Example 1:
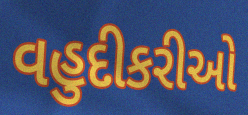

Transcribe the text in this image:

વહુદીકરીઓ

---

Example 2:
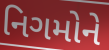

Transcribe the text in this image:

નિગમોને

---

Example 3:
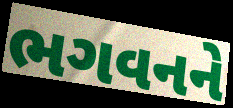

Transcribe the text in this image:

ભગવનને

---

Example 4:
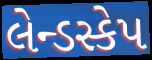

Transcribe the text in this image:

લેન્ડસ્કેપ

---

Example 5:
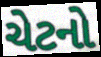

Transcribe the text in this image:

ચેટનો